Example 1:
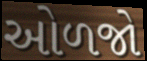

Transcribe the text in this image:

ઓળજો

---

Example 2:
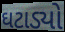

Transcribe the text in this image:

ઘટાડ્યો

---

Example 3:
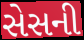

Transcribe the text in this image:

સેસની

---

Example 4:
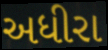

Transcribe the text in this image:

અધીરા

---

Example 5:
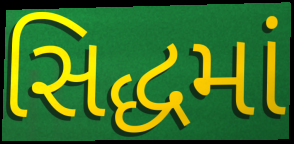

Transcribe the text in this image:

સિદ્ધમાં